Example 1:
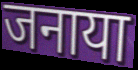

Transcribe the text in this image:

जनाया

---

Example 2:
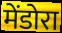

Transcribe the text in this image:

मेंडोरा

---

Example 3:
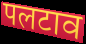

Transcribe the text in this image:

पलटाव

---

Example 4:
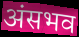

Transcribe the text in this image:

अंसभव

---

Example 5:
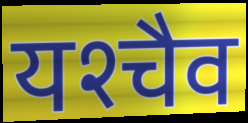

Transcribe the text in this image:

यश्चैव